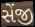
સેંજી